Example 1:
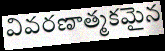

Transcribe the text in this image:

వివరణాత్మకమైన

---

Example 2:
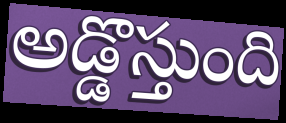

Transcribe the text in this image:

అడ్డొస్తుంది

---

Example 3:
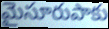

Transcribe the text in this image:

మైసూరుపాకు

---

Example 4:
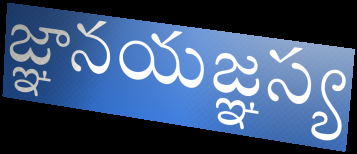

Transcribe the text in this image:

జ్ఞానయజ్ఞస్య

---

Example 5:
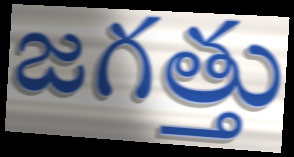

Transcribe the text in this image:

జగత్తు